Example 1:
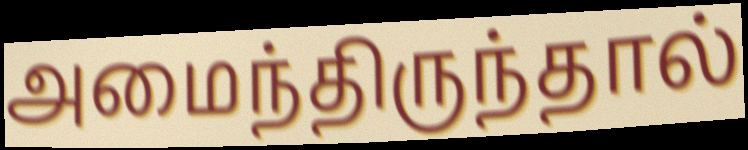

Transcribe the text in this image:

அமைந்திருந்தால்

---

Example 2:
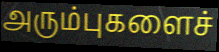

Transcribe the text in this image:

அரும்புகளைச்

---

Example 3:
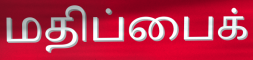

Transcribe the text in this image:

மதிப்பைக்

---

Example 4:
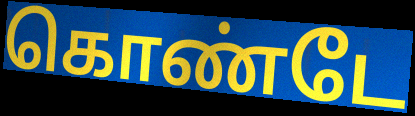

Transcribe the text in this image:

கொண்டே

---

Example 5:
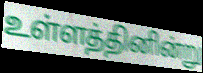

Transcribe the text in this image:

உள்ளத்தினின்று